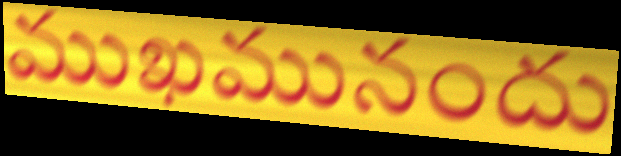
ముఖమునందు